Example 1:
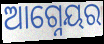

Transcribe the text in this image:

ଆଗ୍ନେୟର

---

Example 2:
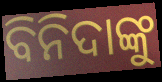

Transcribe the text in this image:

ବିନିଦାଙ୍କୁ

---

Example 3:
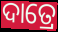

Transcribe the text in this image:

ଦାତ୍ରେ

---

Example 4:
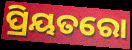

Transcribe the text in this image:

ପ୍ରିୟତରୋ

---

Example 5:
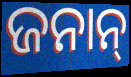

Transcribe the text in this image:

ଜନାନ୍